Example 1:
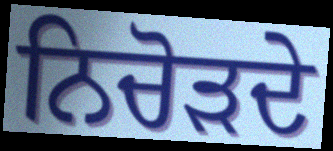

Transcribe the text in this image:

ਨਿਚੋੜਦੇ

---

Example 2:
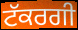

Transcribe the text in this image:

ਟੱਕਰਗੀ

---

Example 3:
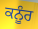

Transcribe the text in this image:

ਕਨੂੰਰ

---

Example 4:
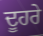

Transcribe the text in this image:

ਦੂਹਰੇ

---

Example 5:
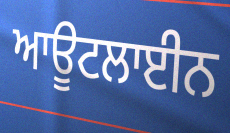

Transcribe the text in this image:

ਆਊਟਲਾਈਨ